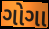
ગોગા